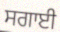
ਸਗਾਈ